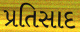
પ્રતિસાદ